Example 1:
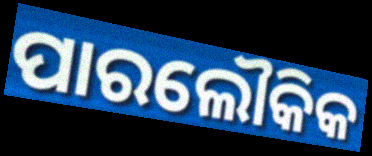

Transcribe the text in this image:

ପାରଲୌକିକ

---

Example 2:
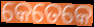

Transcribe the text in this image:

କେତେକେ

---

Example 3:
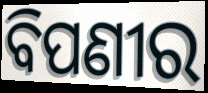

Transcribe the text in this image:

ବିପଣୀର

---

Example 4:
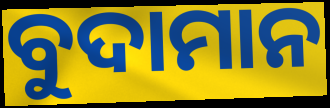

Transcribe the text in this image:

ବୁଦାମାନ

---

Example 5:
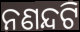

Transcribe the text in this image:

ନଣନ୍ଦଟି